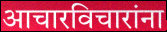
आचारविचारांना